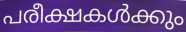
പരീക്ഷകൾക്കും